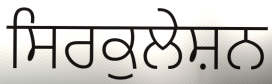
ਸਿਰਕੁਲੇਸ਼ਨ